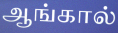
ஆங்கால்